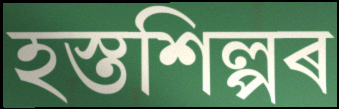
হস্তশিল্পৰ